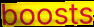
boosts